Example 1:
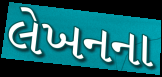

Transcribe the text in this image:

લેખનના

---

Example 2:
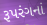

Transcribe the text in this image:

રૂપરંગનાં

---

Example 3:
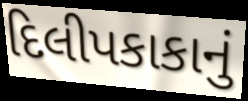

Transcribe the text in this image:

દિલીપકાકાનું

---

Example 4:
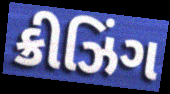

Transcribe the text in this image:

ક્રીઝિંગ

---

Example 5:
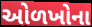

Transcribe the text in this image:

ઓળખોના